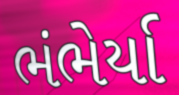
ભંભેર્યા